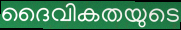
ദൈവികതയുടെ